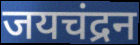
जयचंद्रन